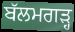
ਬੱਲਮਗੜ੍ਹ